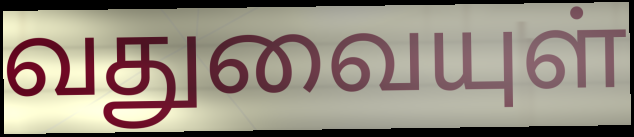
வதுவையுள்